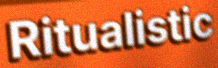
Ritualistic